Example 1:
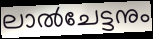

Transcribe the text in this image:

ലാൽചേട്ടനും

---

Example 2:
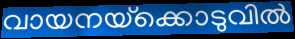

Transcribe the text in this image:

വായനയ്‌ക്കൊടുവിൽ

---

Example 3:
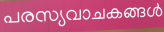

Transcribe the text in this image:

പരസ്യവാചകങ്ങൾ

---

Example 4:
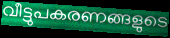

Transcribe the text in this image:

വീട്ടുപകരണങ്ങളുടെ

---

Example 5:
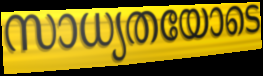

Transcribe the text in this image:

സാധ്യതയോടെ